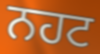
ਨਹਟ